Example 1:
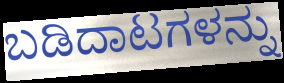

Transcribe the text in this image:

ಬಡಿದಾಟಗಳನ್ನು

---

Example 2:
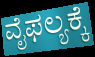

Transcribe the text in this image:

ವೈಫಲ್ಯಕ್ಕೆ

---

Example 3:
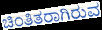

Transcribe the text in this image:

ಚಿಂತಿತರಾಗಿರುವ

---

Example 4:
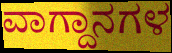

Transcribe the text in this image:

ವಾಗ್ದಾನಗಳ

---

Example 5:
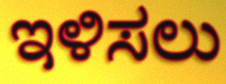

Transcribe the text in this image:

ಇಳಿಸಲು